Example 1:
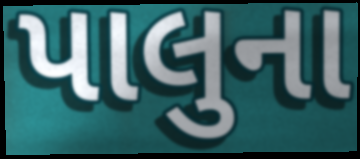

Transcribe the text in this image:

પાલુના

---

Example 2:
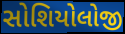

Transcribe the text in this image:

સોશિયોલોજી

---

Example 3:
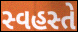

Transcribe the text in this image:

સ્વહસ્તે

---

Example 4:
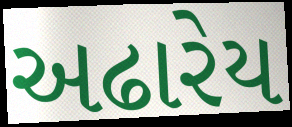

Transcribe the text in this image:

અઢારેય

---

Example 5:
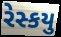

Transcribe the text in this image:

રેસ્કયુ